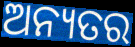
ଅନ୍ୟତର